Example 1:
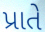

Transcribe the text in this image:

પ્રાતે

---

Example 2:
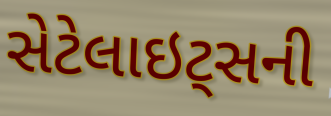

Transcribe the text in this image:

સેટેલાઇટ્સની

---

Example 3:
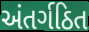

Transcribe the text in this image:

અંતર્ગઠિત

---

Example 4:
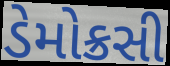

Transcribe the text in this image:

ડેમોક્રસી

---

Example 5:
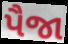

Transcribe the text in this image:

પૈજા